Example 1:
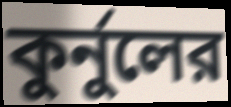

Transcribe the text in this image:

কুর্নুলের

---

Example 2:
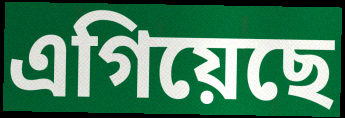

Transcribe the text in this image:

এগিয়েছে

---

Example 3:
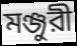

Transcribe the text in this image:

মঞ্জুরী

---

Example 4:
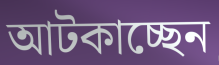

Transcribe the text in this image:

আটকাচ্ছেন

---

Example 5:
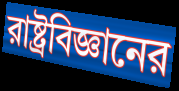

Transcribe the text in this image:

রাষ্ট্রবিজ্ঞানের